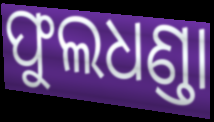
ଫୁଲଧଣ୍ଡା